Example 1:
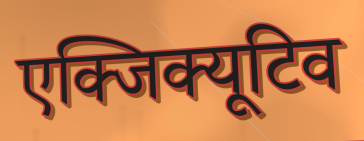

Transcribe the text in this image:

एक्जिक्यूटिव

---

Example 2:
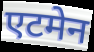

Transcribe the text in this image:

एटमेन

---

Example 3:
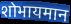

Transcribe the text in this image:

शोभायमान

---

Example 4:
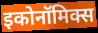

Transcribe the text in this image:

इकोनॉमिक्स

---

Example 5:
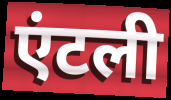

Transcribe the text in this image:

एंटली